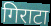
गिराटा